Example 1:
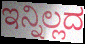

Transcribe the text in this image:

ಇನ್ನಿಲ್ಲದ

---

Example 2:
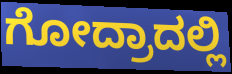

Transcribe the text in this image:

ಗೋದ್ರಾದಲ್ಲಿ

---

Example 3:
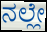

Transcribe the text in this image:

ನಲ್ಲೇ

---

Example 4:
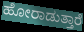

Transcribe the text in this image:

ಹೋರಾಡುತ್ತಾರೆ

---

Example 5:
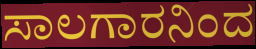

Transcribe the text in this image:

ಸಾಲಗಾರನಿಂದ